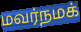
மவர்நமக்